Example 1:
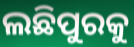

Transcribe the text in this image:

ଲଛିପୁରକୁ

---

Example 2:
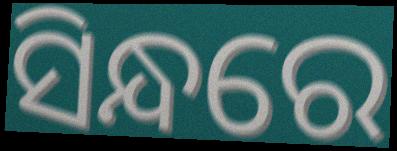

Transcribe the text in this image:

ସିନ୍ଧରେ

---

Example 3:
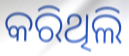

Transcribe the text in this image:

କରିଥିଲି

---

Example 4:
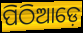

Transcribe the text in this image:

ପିଠିଆଡ଼େ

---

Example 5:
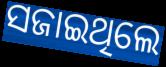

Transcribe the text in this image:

ସଜାଇଥିଲେ